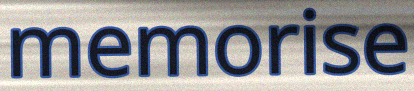
memorise